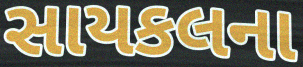
સાયકલના